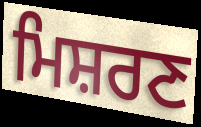
ਮਿਸ਼ਰਣ